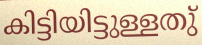
കിട്ടിയിട്ടുള്ളതു്